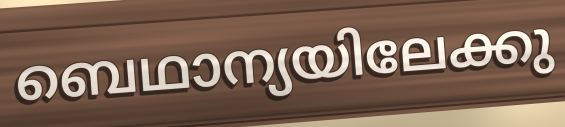
ബെഥാന്യയിലേക്കു